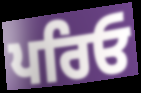
ਪਰਿਓ